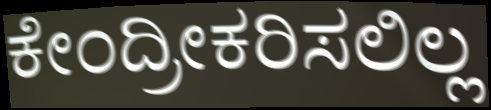
ಕೇಂದ್ರೀಕರಿಸಲಿಲ್ಲ